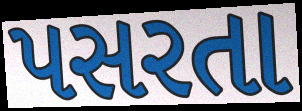
પસરતા